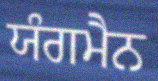
ਯੰਗਮੈਨ